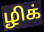
ழிக்